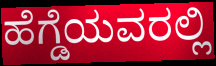
ಹೆಗ್ಡೆಯವರಲ್ಲಿ